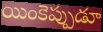
యింకెప్పుడూ